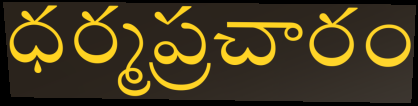
ధర్మప్రచారం